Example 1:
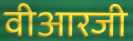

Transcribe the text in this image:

वीआरजी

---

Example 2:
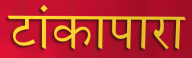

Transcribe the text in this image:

टांकापारा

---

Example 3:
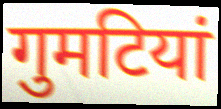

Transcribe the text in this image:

गुमटियां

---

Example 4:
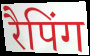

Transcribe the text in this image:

रैपिंग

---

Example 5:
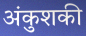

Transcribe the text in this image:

अंकुशकी